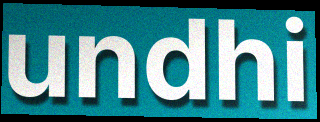
undhi